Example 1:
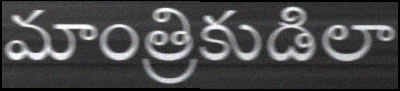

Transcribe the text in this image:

మాంత్రికుడిలా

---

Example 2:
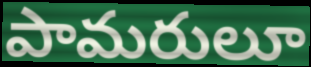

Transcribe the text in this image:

పామరులూ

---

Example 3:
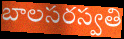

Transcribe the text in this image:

బాలసరస్వతి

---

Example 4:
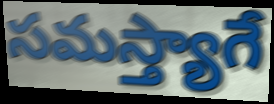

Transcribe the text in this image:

సమస్త్యాగే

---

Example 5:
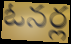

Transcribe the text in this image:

ఓనర్ల